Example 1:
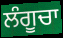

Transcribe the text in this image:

ਲੰਗੂਚਾ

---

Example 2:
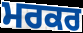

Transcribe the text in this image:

ਮਰਕਰ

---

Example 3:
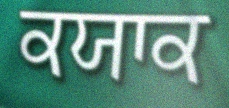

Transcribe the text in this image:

ਕਯਾਕ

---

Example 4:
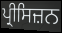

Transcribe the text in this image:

ਪ੍ਰੀਸਿਜ਼ਨ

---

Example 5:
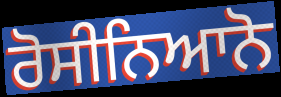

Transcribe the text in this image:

ਰੋਸੀਨਿਆਨੋ